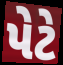
પેટે